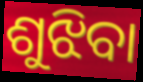
ଶୁଝିବା